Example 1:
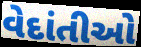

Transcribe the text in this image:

વેદાંતીઓ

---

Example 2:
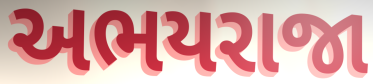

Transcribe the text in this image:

અભયરાજા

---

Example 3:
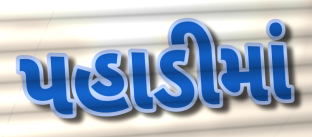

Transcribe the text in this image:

પહાડીમાં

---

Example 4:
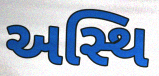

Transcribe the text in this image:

અસ્થિ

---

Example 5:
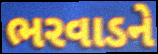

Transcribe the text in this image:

ભરવાડને